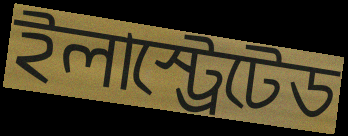
ইলাস্ট্রেটেড